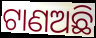
ଟାଣଅଛି